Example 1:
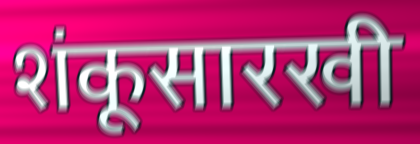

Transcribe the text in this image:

शंकूसारखी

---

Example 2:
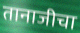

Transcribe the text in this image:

तानाजीचा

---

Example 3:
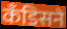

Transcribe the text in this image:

कँडिसने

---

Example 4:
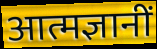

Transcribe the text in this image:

आत्मज्ञानीं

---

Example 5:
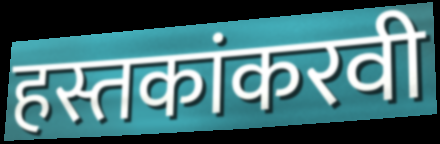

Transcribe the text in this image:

हस्तकांकरवी